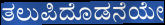
ತಲುಪಿದೊಡನೆಯೇ